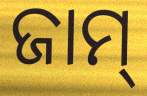
ଜାମ୍